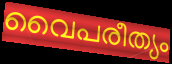
വൈപരീത്യം